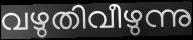
വഴുതിവീഴുന്നു